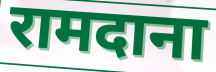
रामदाना